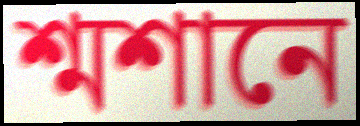
শ্মশানে